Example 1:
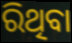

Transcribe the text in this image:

ରିଥିବା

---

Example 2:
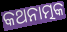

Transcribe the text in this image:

କଥନାତ୍ମକ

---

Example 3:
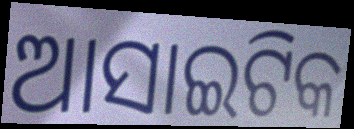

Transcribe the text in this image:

ଆସାଇଟିକ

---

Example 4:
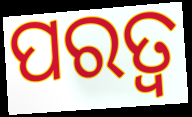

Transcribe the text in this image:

ପରତ୍ୱ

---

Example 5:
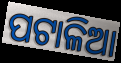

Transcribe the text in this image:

ପଟାଳିଆ